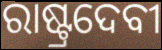
ରାଷ୍ଟ୍ରଦେବୀ